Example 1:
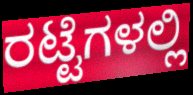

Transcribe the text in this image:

ರಟ್ಟೆಗಳಲ್ಲಿ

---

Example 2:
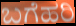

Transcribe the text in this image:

ಬಗೆಹರಿ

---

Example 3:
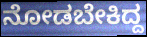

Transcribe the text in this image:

ನೋಡಬೇಕಿದ್ದ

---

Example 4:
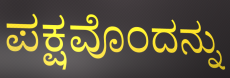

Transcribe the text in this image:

ಪಕ್ಷವೊಂದನ್ನು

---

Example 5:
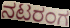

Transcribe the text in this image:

ನಟರಂಗ